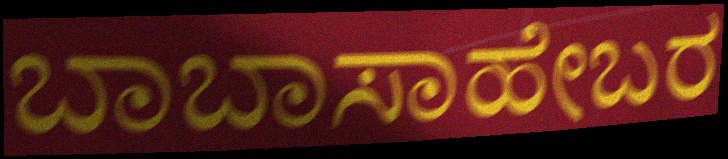
ಬಾಬಾಸಾಹೇಬರ